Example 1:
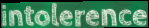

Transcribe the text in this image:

intolerence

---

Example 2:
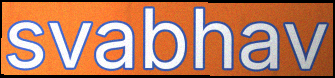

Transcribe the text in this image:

svabhav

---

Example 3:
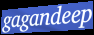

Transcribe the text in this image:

gagandeep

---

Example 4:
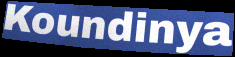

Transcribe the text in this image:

Koundinya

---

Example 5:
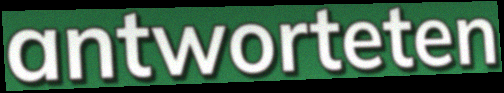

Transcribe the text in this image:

antworteten